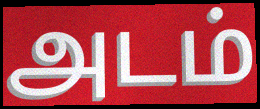
அடம்